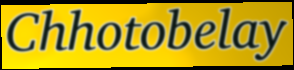
Chhotobelay